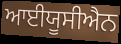
ਆਈਯੂਸੀਐਨ